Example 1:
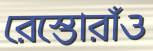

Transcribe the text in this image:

রেস্তোরাঁও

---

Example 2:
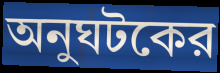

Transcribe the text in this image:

অনুঘটকের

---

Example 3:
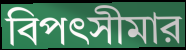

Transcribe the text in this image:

বিপৎসীমার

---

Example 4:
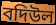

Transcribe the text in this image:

বদিউল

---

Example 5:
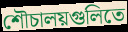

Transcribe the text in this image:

শৌচালয়গুলিতে